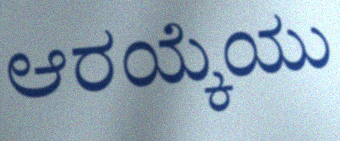
ಆರಯ್ಕೆಯು